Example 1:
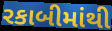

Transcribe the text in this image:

રકાબીમાંથી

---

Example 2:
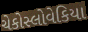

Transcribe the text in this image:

ચેકોસ્લોવેકિયા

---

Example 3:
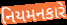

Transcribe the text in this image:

નિયમનકારે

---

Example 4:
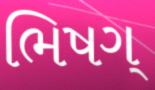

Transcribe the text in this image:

ભિષગ્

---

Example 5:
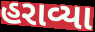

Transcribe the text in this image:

હરાવ્યા